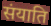
संयाति